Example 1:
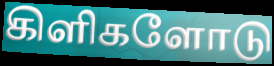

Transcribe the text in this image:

கிளிகளோடு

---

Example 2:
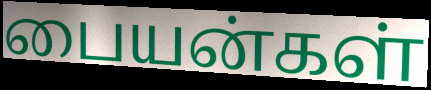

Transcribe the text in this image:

பையன்கள்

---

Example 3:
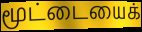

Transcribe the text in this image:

மூட்டையைக்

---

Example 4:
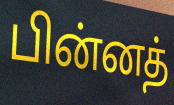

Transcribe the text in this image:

பின்னத்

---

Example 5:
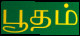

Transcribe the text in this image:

பூதம்